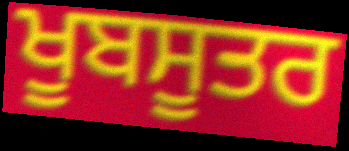
ਖੂਬਸੂਤਰ